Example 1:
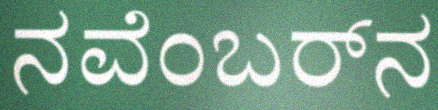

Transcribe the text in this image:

ನವೆಂಬರ್‌ನ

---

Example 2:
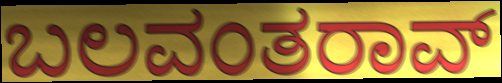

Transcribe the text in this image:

ಬಲವಂತರಾವ್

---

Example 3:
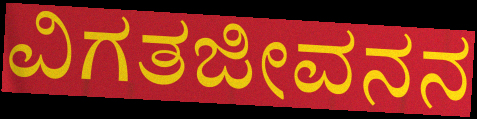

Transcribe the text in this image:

ವಿಗತಜೀವನನ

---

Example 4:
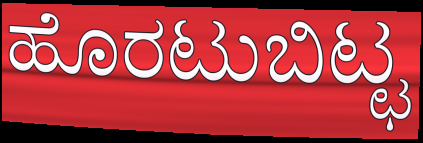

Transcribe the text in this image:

ಹೊರಟುಬಿಟ್ಟ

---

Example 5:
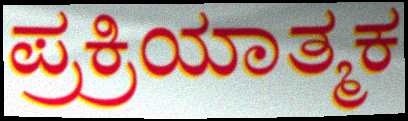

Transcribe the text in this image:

ಪ್ರಕ್ರಿಯಾತ್ಮಕ